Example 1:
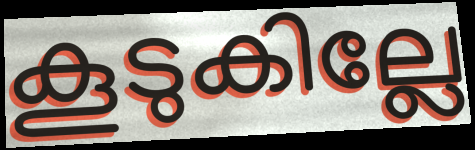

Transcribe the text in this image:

കൂടുകില്ലേ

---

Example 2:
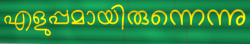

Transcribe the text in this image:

എളുപ്പമായിരുന്നെന്നു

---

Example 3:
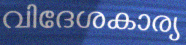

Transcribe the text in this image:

വിദേശകാര്യ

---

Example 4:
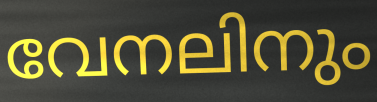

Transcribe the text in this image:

വേനലിനും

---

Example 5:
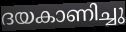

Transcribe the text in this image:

ദയകാണിച്ചു